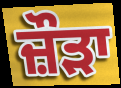
ਜ਼ੌੜਾ